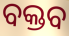
ବକ୍ତବ